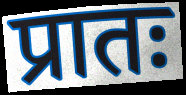
प्रातः